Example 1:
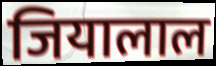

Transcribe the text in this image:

जियालाल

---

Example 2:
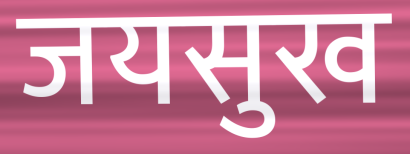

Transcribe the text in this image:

जयसुख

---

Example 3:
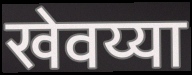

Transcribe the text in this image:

खेवय्या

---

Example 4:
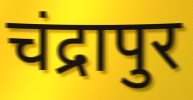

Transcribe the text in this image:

चंद्रापुर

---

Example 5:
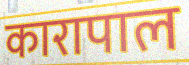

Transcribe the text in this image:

कारापाल